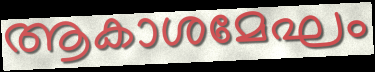
ആകാശമേഘം